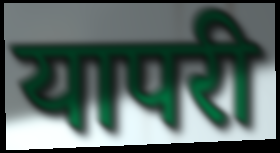
यापरी